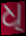
ଧି